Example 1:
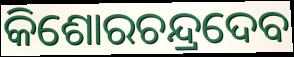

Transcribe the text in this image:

କିଶୋରଚନ୍ଦ୍ରଦେବ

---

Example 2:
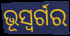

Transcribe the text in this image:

ଭୂସ୍ବର୍ଗର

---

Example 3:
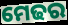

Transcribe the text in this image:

ମେଢର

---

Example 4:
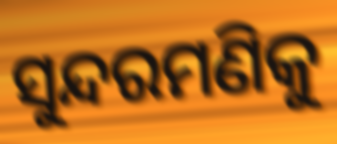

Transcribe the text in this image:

ସୁନ୍ଦରମଣିକୁ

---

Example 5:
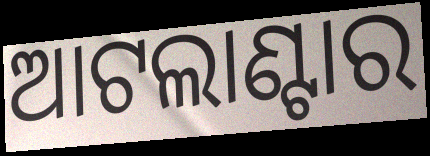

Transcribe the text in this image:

ଆଟଲାଣ୍ଟାର